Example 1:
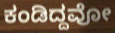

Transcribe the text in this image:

ಕಂಡಿದ್ದವೋ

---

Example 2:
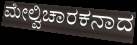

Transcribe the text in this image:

ಮೇಲ್ವಿಚಾರಕನಾದ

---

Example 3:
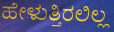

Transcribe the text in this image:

ಹೇಳುತ್ತಿರಲಿಲ್ಲ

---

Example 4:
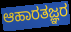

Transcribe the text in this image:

ಆಹಾರತಜ್ಞರ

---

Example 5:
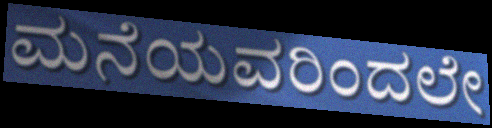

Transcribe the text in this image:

ಮನೆಯವರಿಂದಲೇ